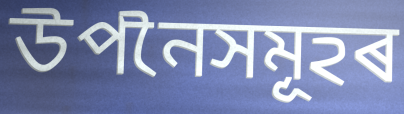
উপনৈসমূহৰ